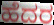
ಹೆದರ